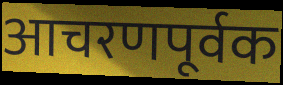
आचरणपूर्वक